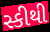
સ્કીથી